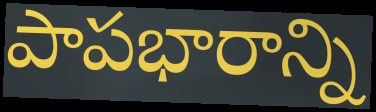
పాపభారాన్ని